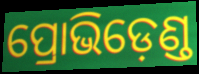
ପ୍ରୋଭିଡ଼େଣ୍ଡ